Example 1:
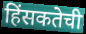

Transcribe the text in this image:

हिंसकतेची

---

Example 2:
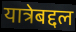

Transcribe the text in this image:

यात्रेबद्दल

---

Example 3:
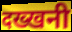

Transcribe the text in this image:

दख्खनी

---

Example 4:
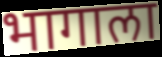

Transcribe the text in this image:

भागाला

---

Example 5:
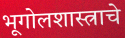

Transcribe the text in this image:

भूगोलशास्त्राचे